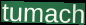
tumach